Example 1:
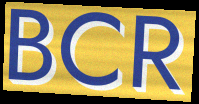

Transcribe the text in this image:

BCR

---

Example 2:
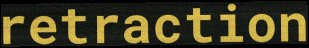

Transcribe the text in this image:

retraction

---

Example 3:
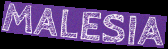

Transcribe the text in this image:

MALESIA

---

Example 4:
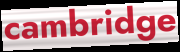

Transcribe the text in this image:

cambridge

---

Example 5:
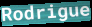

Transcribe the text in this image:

Rodrigue